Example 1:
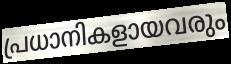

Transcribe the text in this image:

പ്രധാനികളായവരും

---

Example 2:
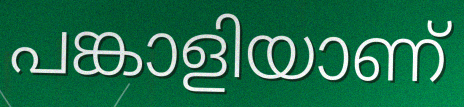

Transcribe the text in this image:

പങ്കാളിയാണ്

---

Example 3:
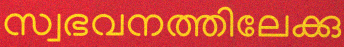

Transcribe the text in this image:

സ്വഭവനത്തിലേക്കു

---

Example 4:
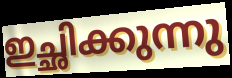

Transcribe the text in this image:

ഇച്ഛിക്കുന്നു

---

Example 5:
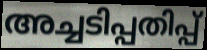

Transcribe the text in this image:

അച്ചടിപ്പതിപ്പ്